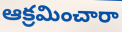
ఆక్రమించారా